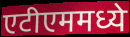
एटीएममध्ये